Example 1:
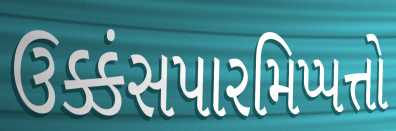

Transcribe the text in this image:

ઉક્કંસપારમિપ્પત્તો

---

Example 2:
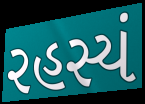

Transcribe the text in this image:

રહસ્યં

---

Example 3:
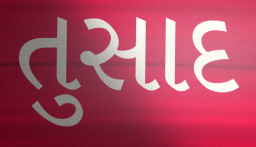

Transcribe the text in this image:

તુસાદ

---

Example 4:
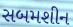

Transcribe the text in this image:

સબમશીન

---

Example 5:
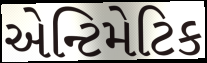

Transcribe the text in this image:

એન્ટિમેટિક